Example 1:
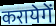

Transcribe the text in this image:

करायेगें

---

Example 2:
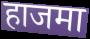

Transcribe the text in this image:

हाजमा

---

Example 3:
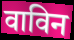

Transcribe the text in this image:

वाविन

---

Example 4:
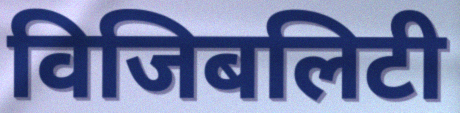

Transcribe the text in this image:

विजिबलिटी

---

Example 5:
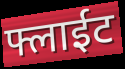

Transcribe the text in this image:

फ्लाईट